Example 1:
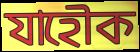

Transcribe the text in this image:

যাহৌক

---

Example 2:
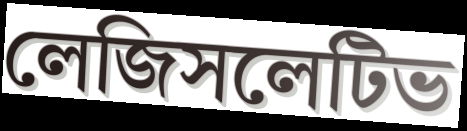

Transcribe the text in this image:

লেজিসলেটিভ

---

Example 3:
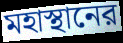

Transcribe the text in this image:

মহাস্থানের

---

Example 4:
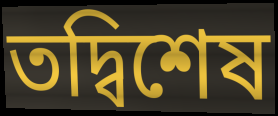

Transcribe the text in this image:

তদ্বিশেষ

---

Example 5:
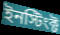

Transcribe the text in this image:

ইনস্টিংক্ট